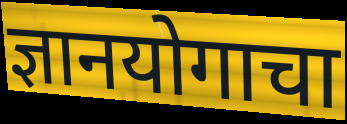
ज्ञानयोगाचा